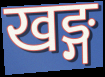
खङ्ग